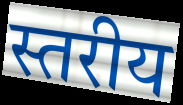
स्तरीय